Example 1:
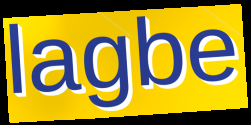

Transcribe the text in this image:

lagbe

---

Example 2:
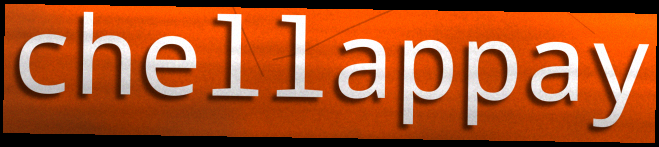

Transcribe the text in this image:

chellappay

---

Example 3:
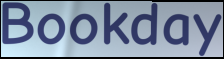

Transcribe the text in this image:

Bookday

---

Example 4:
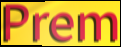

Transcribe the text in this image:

Prem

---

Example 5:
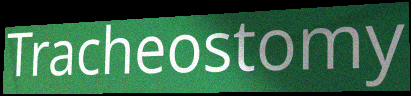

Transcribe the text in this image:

Tracheostomy